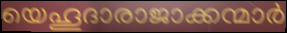
യെഹൂദാരാജാക്കന്മാർ